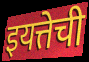
इयत्तेची